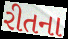
રીતના